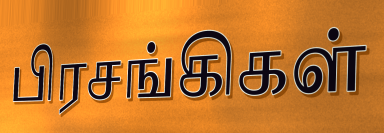
பிரசங்கிகள்